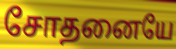
சோதனையே